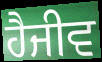
ਹੈਜੀਵ